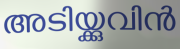
അടിയ്ക്കുവിൻ